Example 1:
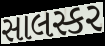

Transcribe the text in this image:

સાલસ્કર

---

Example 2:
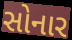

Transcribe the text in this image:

સોનાર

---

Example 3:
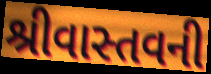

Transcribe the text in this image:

શ્રીવાસ્તવની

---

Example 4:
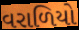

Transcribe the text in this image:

વરાળિયો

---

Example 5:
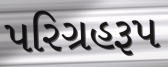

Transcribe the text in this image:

પરિગ્રહરૂપ